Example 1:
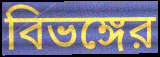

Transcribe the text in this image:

বিভঙ্গের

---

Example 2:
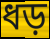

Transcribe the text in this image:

ধড়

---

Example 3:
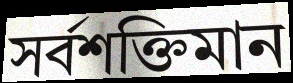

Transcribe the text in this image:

সর্বশক্তিমান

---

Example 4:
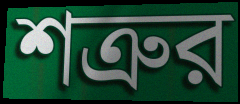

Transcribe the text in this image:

শত্রুর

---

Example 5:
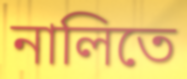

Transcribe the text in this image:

নালিতে